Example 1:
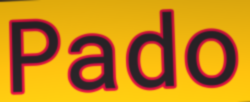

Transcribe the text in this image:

Pado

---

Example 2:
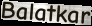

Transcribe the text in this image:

Balatkar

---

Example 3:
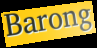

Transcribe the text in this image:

Barong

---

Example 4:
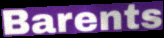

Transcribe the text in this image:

Barents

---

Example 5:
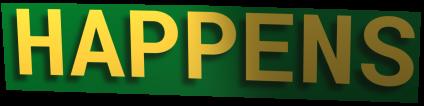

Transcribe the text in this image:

HAPPENS